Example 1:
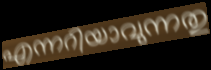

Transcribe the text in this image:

എന്നറിയാവുന്നതു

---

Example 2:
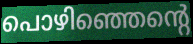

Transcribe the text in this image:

പൊഴിഞ്ഞെന്റെ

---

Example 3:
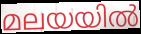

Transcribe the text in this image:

മലയയിൽ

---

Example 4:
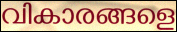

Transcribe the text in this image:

വികാരങ്ങളെ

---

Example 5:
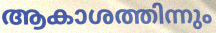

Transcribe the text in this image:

ആകാശത്തിന്നും